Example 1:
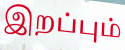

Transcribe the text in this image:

இறப்பும்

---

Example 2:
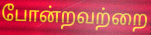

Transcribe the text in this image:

போன்றவற்றை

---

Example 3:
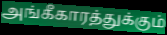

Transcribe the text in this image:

அங்கீகாரத்துக்கும்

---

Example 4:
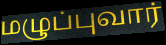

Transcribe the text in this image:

மழுப்புவார்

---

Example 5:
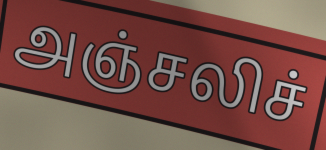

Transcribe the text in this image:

அஞ்சலிச்